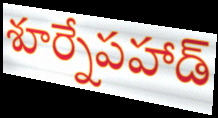
శూర్నేపహాడ్